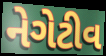
નેગેટીવ